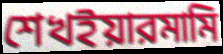
শেখইয়ারমামি